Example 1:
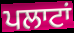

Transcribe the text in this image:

ਪਲਾਟਾਂ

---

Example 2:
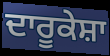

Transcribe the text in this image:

ਦਾਰੂਕੇਸ਼ਾ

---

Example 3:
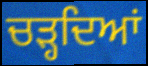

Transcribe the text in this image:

ਚੜ੍ਹਦਿਆਂ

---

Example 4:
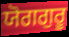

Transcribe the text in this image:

ਯੋਗਗੁਰੂ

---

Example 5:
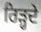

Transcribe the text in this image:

ਰਿੜ੍ਹਦੇ